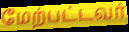
மேற்பட்டவர்